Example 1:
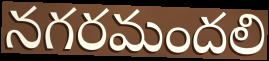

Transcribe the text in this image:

నగరమందలి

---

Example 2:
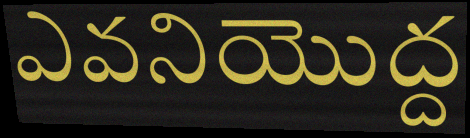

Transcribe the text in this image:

ఎవనియొద్ద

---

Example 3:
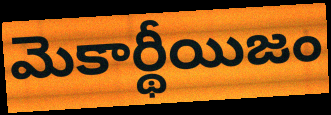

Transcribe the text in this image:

మెకార్థీయిజం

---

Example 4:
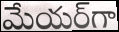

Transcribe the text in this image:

మేయర్‌గా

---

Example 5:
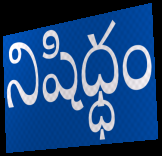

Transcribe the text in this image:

నిషిధ్ధం